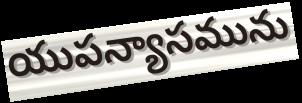
యుపన్యాసమును